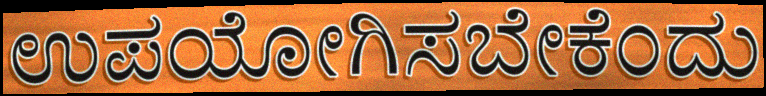
ಉಪಯೋಗಿಸಬೇಕೆಂದು